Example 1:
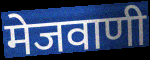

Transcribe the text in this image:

मेजवाणी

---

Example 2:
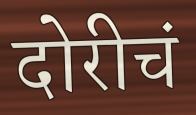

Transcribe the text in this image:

दोरीचं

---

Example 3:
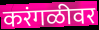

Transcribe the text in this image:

करंगळीवर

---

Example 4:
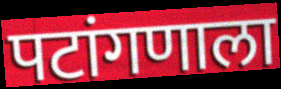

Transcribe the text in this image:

पटांगणाला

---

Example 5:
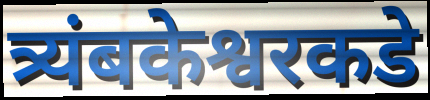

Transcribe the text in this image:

त्र्यंबकेश्वरकडे